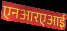
एनआरएआई